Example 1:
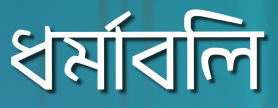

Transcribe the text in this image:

ধর্মাবলি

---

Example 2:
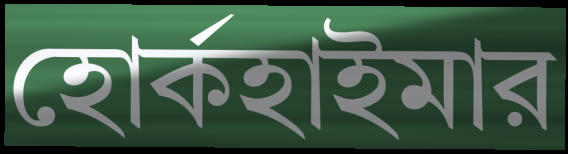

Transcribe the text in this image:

হোর্কহাইমার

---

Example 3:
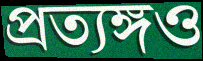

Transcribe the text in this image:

প্রত্যঙ্গও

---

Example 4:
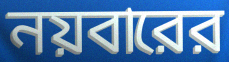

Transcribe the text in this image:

নয়বারের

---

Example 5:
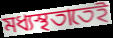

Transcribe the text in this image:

মধ্যস্থতাতেই